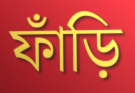
ফাঁড়ি